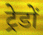
ट्रेडों